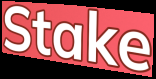
Stake